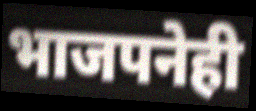
भाजपनेही